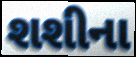
શશીના